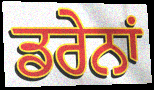
ਡਰੇਨਾਂ